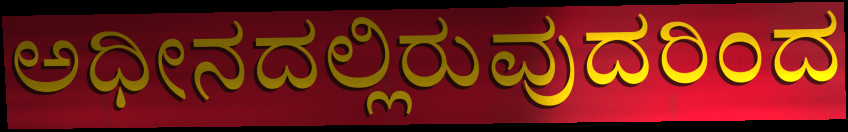
ಅಧೀನದಲ್ಲಿರುವುದರಿಂದ